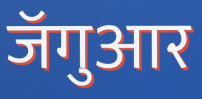
जॅगुआर